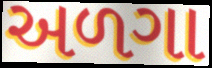
અળગા